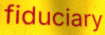
fiduciary